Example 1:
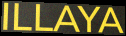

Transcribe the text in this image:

ILLAYA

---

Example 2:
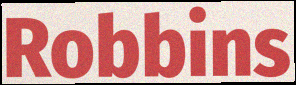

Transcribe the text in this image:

Robbins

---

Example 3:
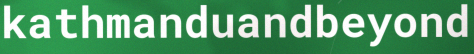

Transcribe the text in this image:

kathmanduandbeyond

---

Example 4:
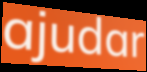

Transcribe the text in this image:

ajudar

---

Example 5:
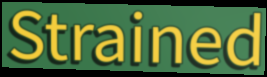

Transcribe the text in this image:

Strained